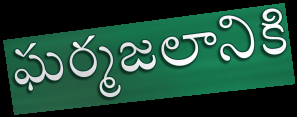
ఘర్మజలానికి